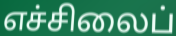
எச்சிலைப்